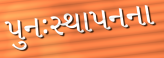
પુનઃસ્થાપનના